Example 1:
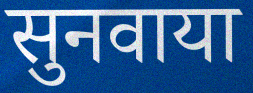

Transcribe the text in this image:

सुनवाया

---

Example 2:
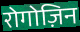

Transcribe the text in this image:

रोगोज़िन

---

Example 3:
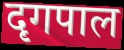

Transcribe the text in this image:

दृगपाल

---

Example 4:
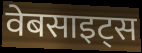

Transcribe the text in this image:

वेबसाइट्स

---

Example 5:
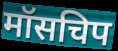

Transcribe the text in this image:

मॉसचिप